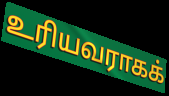
உரியவராகக்